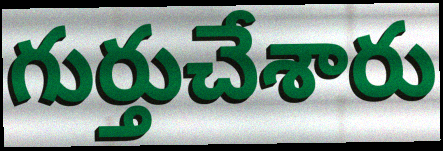
గుర్తుచేశారు